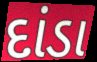
દાંડા